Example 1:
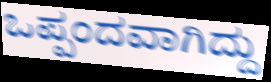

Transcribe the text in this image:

ಒಪ್ಪಂದವಾಗಿದ್ದು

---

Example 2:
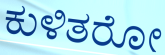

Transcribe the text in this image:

ಕುಳಿತರೋ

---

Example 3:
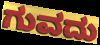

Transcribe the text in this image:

ಗುವದು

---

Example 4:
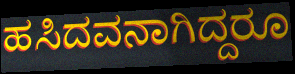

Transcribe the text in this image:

ಹಸಿದವನಾಗಿದ್ದರೂ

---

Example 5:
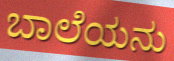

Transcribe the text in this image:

ಬಾಲೆಯನು